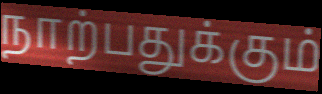
நாற்பதுக்கும்